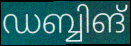
ഡബ്ബിങ്